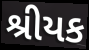
શ્રીયક